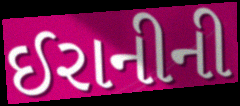
ઈરાનીની